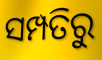
ସମ୍ପତିରୁ